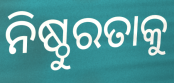
ନିଷ୍ଠୁରତାକୁ